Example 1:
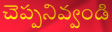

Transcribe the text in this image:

చెప్పనివ్వండి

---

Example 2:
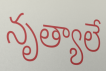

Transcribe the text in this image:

నృత్యాలే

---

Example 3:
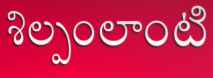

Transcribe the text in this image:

శిల్పంలాంటి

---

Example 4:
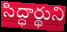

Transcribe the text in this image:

సిద్ధార్థుని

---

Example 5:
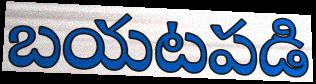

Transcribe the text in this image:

బయటపడి